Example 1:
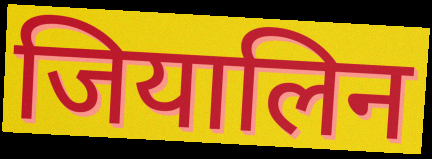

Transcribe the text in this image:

जियालिन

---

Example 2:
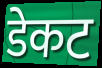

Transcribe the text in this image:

डेकट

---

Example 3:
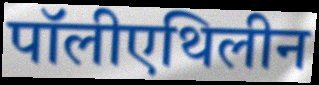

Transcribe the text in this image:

पॉलीएथिलीन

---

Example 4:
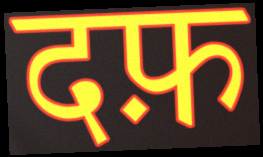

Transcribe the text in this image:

दफ़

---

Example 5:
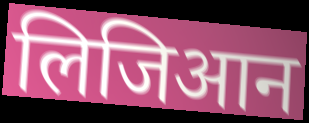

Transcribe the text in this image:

लिजिआन